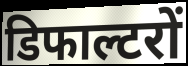
डिफाल्टरों